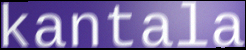
kantala